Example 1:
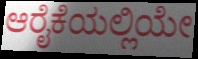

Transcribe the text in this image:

ಆರೈಕೆಯಲ್ಲಿಯೇ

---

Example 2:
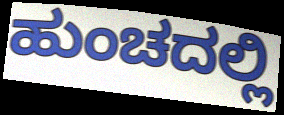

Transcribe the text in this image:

ಹುಂಚದಲ್ಲಿ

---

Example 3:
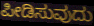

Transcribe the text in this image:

ಪೀಡಿಸುವುದು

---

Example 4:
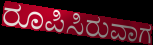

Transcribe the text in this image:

ರೂಪಿಸಿರುವಾಗ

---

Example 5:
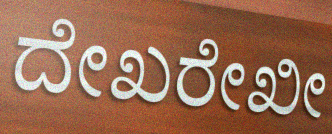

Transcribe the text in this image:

ದೇಖರೇಖೀ